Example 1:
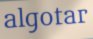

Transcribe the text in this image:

algotar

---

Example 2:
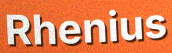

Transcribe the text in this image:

Rhenius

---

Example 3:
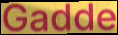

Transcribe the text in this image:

Gadde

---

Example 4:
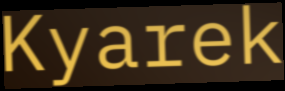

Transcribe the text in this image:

Kyarek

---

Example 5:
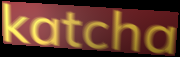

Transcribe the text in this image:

katcha